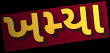
ખમ્યા